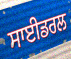
ਸਾਈਡਰਲ